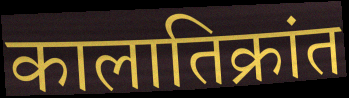
कालातिक्रांत